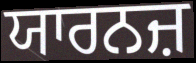
ਯਾਰਨਜ਼